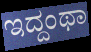
ಇದ್ದಂಥಾ